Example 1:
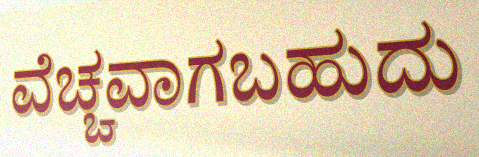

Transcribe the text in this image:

ವೆಚ್ಚವಾಗಬಹುದು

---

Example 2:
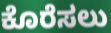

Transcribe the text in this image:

ಕೊರೆಸಲು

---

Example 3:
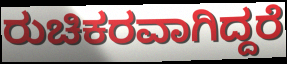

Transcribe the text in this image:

ರುಚಿಕರವಾಗಿದ್ದರೆ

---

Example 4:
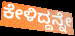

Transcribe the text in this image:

ಕೇಳಿದ್ದನ್ನೇ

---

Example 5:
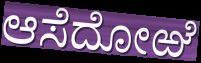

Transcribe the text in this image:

ಆಸೆದೋಱೆ